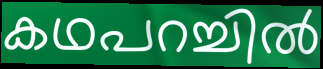
കഥപറച്ചിൽ